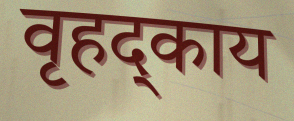
वृहद्काय